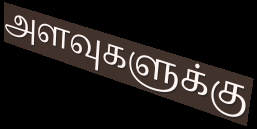
அளவுகளுக்கு